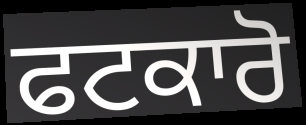
ਫਟਕਾਰੋ